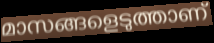
മാസങ്ങളെടുത്താണ്